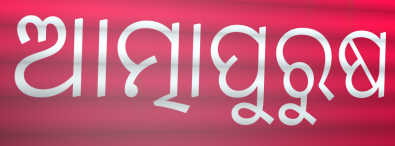
ଆତ୍ମାପୁରୁଷ